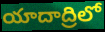
యాదాద్రిలో